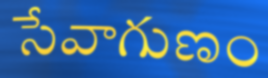
సేవాగుణం